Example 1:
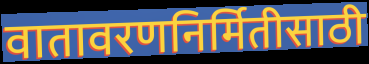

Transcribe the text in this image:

वातावरणनिर्मितीसाठी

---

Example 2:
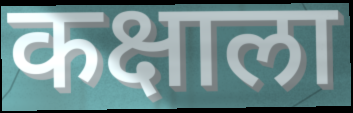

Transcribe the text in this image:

कक्षाला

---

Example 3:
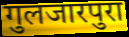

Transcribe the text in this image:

गुलजारपुरा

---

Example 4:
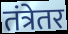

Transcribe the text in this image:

तंत्रेतर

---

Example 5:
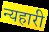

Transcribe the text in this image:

न्यहारी